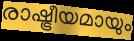
രാഷ്ട്രീയമായും